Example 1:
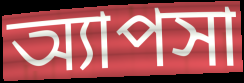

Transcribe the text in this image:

অ্যাপসা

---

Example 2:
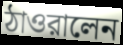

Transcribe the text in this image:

ঠাওরালেন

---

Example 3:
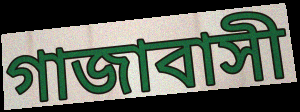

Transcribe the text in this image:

গাজাবাসী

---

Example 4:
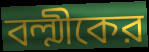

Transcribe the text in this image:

বল্মীকের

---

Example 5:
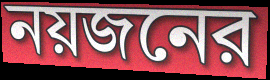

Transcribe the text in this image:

নয়জনের